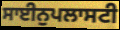
ਸਾਈਨੁਪਲਾਸਟੀ